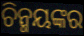
ଚିନ୍ମୟଙ୍କର